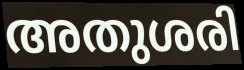
അതുശരി